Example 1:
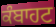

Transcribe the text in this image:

ਕੰਬਾਹਟ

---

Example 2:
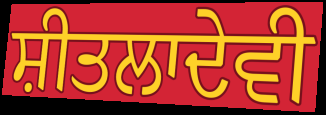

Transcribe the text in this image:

ਸ਼ੀਤਲਾਦੇਵੀ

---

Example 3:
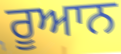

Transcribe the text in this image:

ਰੂਆਨ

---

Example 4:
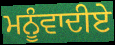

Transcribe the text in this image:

ਮਨੂੰਵਾਦੀਏ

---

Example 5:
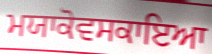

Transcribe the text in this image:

ਮਯਾਕੋਵਸਕਾਇਆ